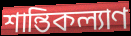
শান্তিকল্যাণ